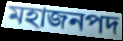
মহাজনপদ